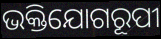
ଭକ୍ତିଯୋଗରୂପୀ